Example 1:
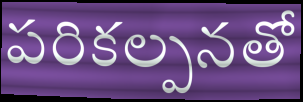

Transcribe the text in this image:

పరికల్పనతో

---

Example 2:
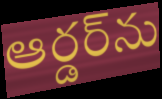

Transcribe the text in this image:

ఆర్డర్‌ను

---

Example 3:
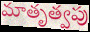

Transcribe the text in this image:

మాతృత్వపు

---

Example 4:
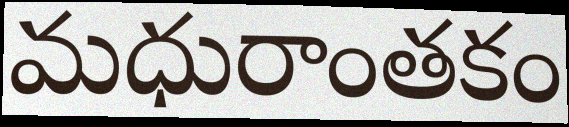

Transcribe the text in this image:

మధురాంతకం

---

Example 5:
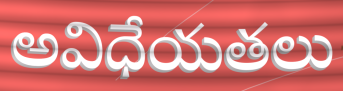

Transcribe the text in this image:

అవిధేయతలు